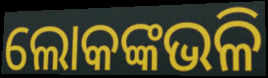
ଲୋକଙ୍କଭଳି